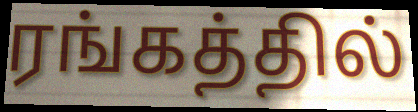
ரங்கத்தில்